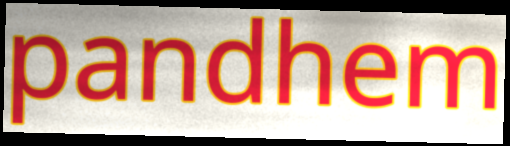
pandhem